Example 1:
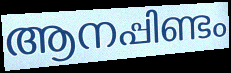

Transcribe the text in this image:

ആനപ്പിണ്ടം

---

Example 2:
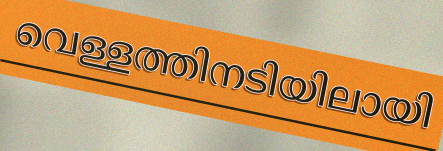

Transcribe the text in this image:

വെള്ളത്തിനടിയിലായി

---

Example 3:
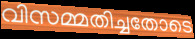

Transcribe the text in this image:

വിസമ്മതിച്ചതോടെ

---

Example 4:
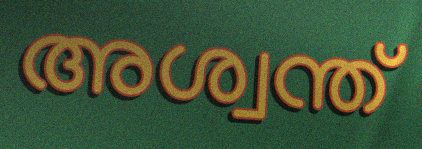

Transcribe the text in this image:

അശ്വന്ത്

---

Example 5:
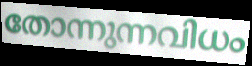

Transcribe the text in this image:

തോന്നുന്നവിധം